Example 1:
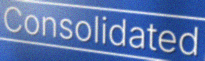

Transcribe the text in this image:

Consolidated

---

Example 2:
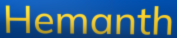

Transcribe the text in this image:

Hemanth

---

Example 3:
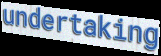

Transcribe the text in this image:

undertaking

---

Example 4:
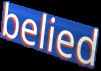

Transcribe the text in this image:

belied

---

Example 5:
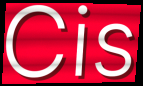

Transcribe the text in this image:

Cis